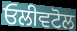
ਓਲੀਵਟੋਲ